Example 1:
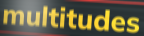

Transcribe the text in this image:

multitudes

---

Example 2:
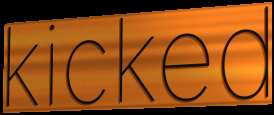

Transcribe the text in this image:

kicked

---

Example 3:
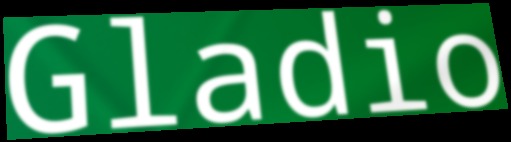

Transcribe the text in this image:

Gladio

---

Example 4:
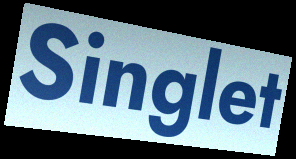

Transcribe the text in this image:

Singlet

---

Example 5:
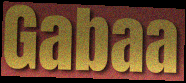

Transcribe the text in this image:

Gabaa